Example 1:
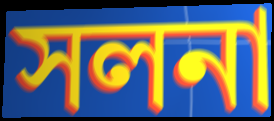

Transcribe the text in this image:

সলনা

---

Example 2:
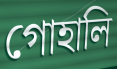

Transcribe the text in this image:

গোহালি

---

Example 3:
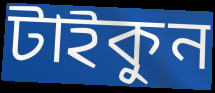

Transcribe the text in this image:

টাইকুন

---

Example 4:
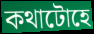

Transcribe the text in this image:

কথাটোহে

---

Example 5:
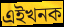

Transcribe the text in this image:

এইখনক